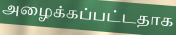
அழைக்கப்பட்டதாக